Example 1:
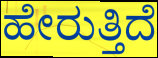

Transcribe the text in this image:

ಹೇರುತ್ತಿದೆ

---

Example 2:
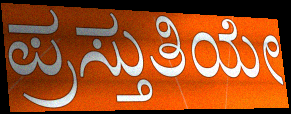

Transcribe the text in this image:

ಪ್ರಸ್ತುತಿಯೇ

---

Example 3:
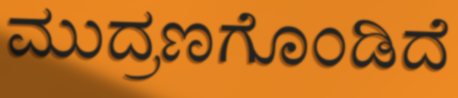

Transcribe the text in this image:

ಮುದ್ರಣಗೊಂಡಿದೆ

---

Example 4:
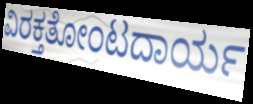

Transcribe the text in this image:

ವಿರಕ್ತತೋಂಟದಾರ್ಯ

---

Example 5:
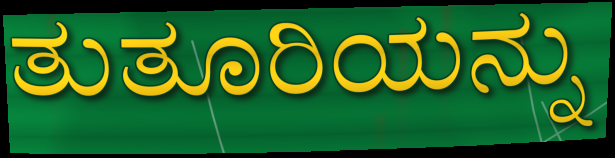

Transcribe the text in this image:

ತುತೂರಿಯನ್ನು